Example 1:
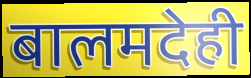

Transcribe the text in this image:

बालमदेही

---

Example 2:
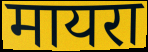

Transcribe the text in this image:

मायरा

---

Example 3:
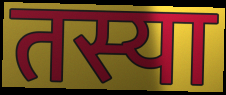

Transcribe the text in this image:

तस्या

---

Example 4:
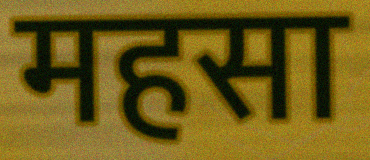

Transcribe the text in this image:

महसा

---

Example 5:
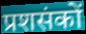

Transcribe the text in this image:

प्रशसंकों